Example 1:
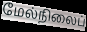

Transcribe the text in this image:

மேல்நிலைப்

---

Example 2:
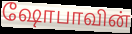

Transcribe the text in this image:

ஷோபாவின்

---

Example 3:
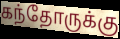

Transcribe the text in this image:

கந்தோருக்கு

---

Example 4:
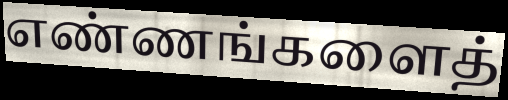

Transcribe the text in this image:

எண்ணங்களைத்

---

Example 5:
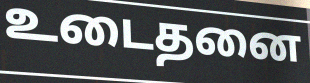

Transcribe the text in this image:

உடைதனை